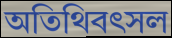
অতিথিবৎসল